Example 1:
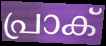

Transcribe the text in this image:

പ്രാക്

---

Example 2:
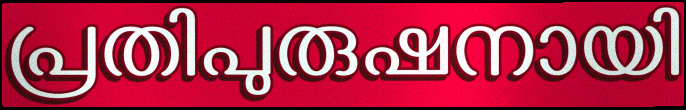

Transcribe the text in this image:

പ്രതിപുരുഷനായി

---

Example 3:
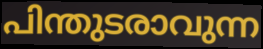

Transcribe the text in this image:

പിന്തുടരാവുന്ന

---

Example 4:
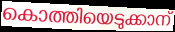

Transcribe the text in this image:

കൊത്തിയെടുക്കാന്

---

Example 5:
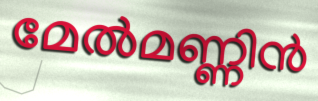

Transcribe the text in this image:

മേൽമണ്ണിൻ